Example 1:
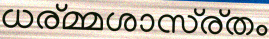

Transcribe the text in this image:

ധര്മ്മശാസ്ര്തം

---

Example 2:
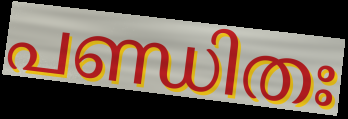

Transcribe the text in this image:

പണ്ഡിതഃ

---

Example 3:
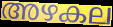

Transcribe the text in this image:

അഴകല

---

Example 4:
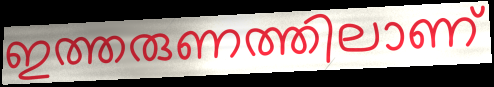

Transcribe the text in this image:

ഇത്തരുണത്തിലാണ്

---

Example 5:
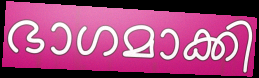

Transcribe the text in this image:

ഭാഗമാക്കി